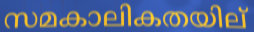
സമകാലികതയില്